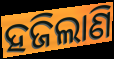
ହଜିଲାଣି